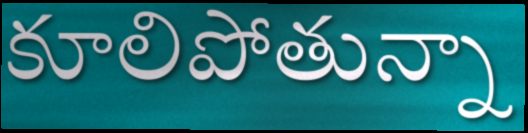
కూలిపోతున్నా